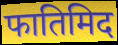
फातिमिद